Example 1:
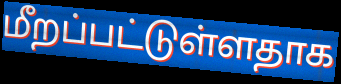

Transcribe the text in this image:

மீறப்பட்டுள்ளதாக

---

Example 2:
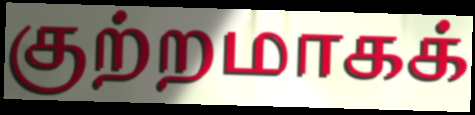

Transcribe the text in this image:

குற்றமாகக்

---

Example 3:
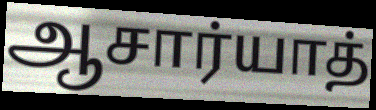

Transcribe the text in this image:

ஆசார்யாத்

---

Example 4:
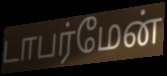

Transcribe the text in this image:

டாபர்மேன்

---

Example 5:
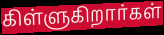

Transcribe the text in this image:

கிள்ளுகிறார்கள்